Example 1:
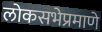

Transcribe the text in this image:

लोकसभेप्रमाणे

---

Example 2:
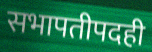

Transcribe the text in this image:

सभापतीपदही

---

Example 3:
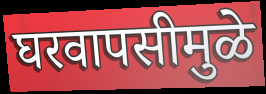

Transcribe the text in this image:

घरवापसीमुळे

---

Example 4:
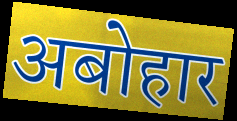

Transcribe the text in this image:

अबोहार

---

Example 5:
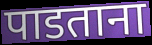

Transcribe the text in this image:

पाडताना